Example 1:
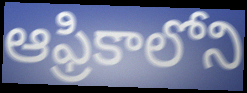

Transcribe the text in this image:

ఆఫ్రికాలోని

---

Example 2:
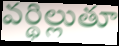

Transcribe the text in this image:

వర్థిల్లుతూ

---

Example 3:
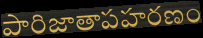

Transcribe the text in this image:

పారిజాతాపహరణం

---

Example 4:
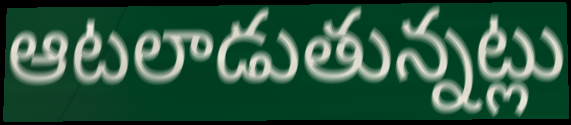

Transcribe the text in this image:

ఆటలాడుతున్నట్లు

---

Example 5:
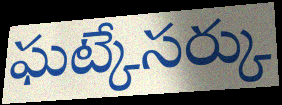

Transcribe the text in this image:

ఘట్కేసర్కు